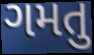
ગમતુ